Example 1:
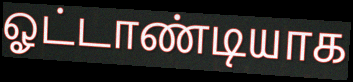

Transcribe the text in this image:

ஓட்டாண்டியாக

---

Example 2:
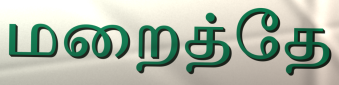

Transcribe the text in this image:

மறைத்தே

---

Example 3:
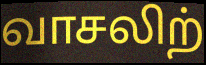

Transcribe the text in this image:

வாசலிற்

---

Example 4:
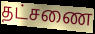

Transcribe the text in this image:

தட்சணை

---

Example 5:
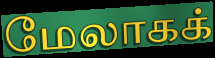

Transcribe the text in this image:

மேலாகக்